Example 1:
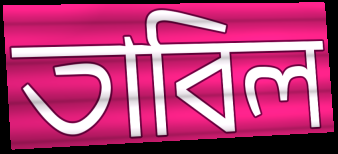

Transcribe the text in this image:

তাবিল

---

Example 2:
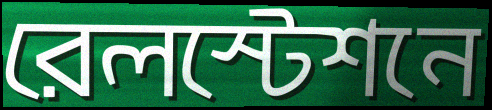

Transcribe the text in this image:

রেলস্টেশনে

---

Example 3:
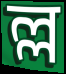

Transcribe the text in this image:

ল্ল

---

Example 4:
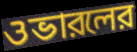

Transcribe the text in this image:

ওভারলের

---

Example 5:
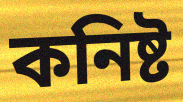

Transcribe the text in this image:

কনিষ্ট